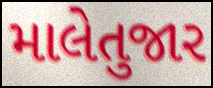
માલેતુજાર